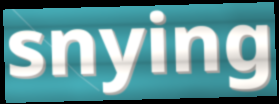
snying